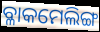
ବ୍ଳାକମେଲିଙ୍ଗ